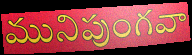
మునిపుంగవా